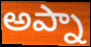
అప్నా